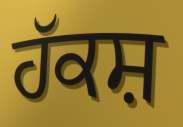
ਹੱਕਸ਼